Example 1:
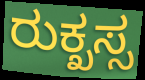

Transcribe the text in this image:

ರುಕ್ಖಸ್ಸ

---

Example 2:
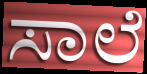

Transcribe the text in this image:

ಸಾಲೆ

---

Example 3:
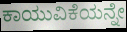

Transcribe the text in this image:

ಕಾಯುವಿಕೆಯನ್ನೇ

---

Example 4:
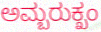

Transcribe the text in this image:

ಅಮ್ಬರುಕ್ಖಂ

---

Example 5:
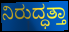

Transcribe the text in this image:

ನಿರುದ್ಧತ್ತಾ